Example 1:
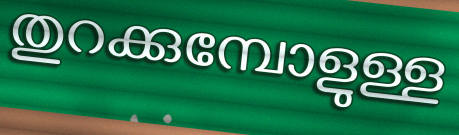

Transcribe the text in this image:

തുറക്കുമ്പോളുള്ള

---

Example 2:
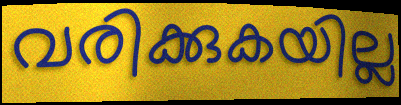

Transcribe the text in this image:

വരിക്കുകയില്ല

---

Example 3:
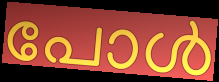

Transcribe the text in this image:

പോൾ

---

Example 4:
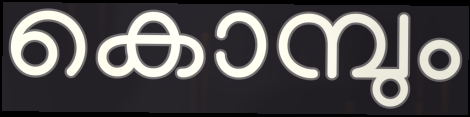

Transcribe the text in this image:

കൊമ്പും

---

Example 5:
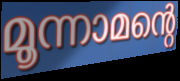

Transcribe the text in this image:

മൂന്നാമന്റെ